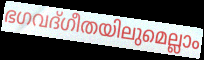
ഭഗവദ്ഗീതയിലുമെല്ലാം